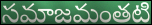
సమాజమంతటి